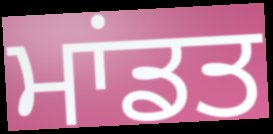
ਮਾਂਡਤ